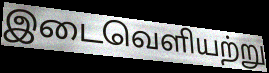
இடைவெளியற்று